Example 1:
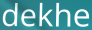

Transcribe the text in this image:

dekhe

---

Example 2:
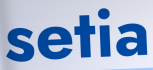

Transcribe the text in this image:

setia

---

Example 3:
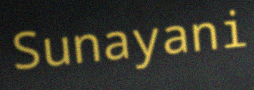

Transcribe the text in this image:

Sunayani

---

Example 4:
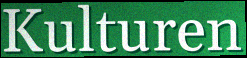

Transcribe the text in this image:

Kulturen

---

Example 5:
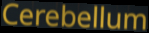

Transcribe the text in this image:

Cerebellum